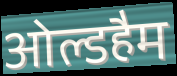
ओल्डहैम